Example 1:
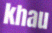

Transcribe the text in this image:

khau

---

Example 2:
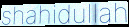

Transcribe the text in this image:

shahidullah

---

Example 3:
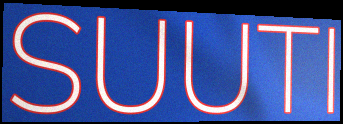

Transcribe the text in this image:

SUUTI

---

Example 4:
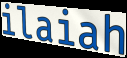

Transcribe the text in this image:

ilaiah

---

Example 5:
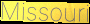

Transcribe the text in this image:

Missouri